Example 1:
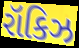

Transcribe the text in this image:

રૉકિઝ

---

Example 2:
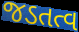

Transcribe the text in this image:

જડતત્વ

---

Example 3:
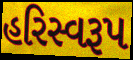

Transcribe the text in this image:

હરિસ્વરૂપ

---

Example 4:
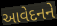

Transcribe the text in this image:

આવેદનને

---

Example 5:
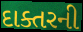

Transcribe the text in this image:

દાક્તરની